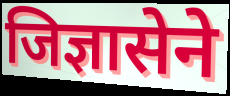
जिज्ञासेने